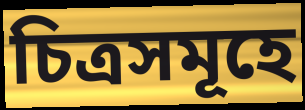
চিত্ৰসমূহে